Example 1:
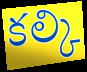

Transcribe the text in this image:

కల్కి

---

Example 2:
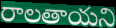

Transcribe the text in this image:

రాలతాయని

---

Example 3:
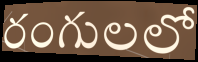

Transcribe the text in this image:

రంగులలో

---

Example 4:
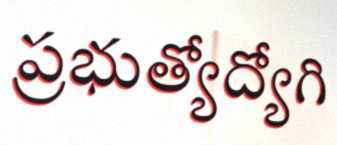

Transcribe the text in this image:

ప్రభుత్యోద్యోగి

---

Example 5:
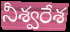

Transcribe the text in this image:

నీశ్వరేశ